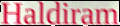
Haldiram